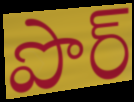
పొర్